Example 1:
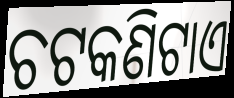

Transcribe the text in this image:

ଚଟକଣିଟାଏ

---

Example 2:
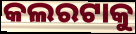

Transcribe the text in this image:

କଲରଟାକୁ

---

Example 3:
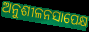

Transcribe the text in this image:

ଅନୁଶୀଳନସାପେକ୍ଷ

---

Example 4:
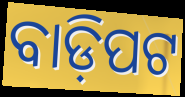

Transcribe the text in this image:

ବାଡ଼ିପଟ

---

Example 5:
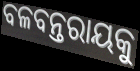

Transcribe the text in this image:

ବଳବନ୍ତରାୟକୁ